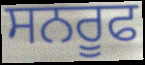
ਸਨਰੂਫ